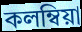
কলম্বিয়া